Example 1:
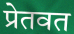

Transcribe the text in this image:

प्रेतवत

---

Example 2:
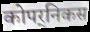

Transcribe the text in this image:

कोपर्निकस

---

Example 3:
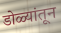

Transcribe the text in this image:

डोळ्यांतून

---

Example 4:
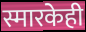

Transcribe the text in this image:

स्मारकेही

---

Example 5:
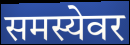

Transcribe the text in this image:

समस्येवर